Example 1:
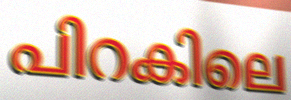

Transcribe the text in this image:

പിറകിലെ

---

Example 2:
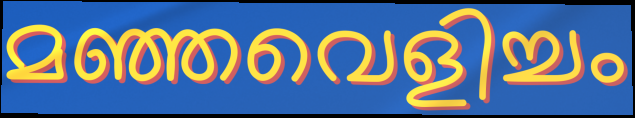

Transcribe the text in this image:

മഞ്ഞവെളിച്ചം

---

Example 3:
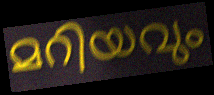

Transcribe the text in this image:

മറിയവും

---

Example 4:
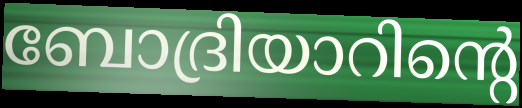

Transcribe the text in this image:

ബോദ്രിയാറിന്റെ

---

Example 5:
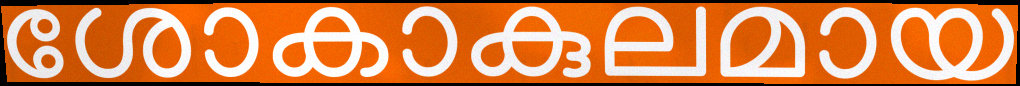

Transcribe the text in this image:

ശോകാകുലമായ